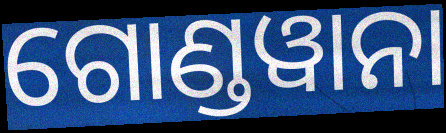
ଗୋଣ୍ଡୱାନା